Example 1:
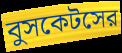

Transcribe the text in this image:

বুসকেটসের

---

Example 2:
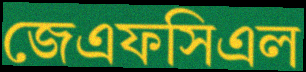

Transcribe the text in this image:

জেএফসিএল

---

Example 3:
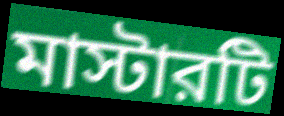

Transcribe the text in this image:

মাস্টারটি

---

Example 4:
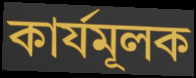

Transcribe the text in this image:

কার্যমূলক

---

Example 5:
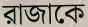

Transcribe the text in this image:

রাজাকে